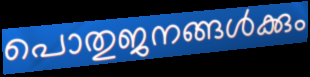
പൊതുജനങ്ങൾക്കും